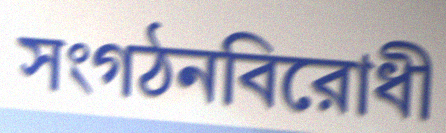
সংগঠনবিরোধী